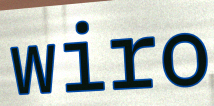
wiro